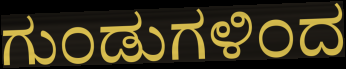
ಗುಂಡುಗಳಿಂದ